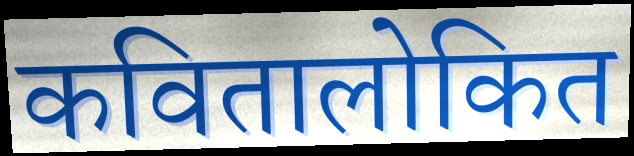
कवितालोकित